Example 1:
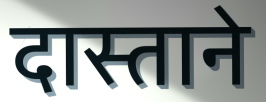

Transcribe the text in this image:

दास्ताने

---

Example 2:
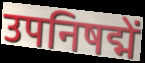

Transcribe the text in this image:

उपनिषद्में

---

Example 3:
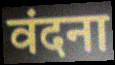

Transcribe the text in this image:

वंदना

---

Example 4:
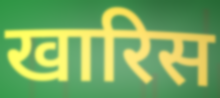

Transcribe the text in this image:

खारिस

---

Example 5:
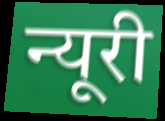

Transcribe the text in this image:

न्यूरी